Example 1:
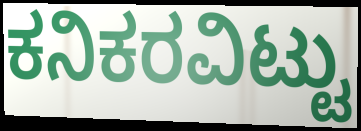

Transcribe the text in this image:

ಕನಿಕರವಿಟ್ಟು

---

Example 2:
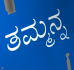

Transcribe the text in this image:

ತಮ್ಮನ್ನ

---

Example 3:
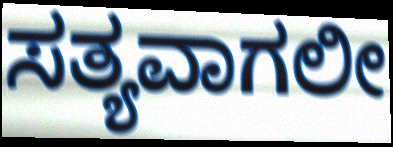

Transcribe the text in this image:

ಸತ್ಯವಾಗಲೀ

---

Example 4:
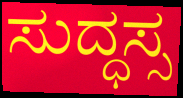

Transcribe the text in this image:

ಸುದ್ಧಸ್ಸ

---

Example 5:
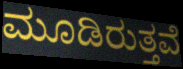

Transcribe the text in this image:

ಮೂಡಿರುತ್ತವೆ